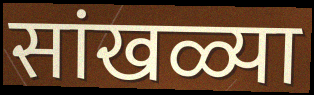
सांखळ्या